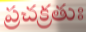
ప్రచక్రతుః